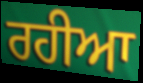
ਰਹੀਆ